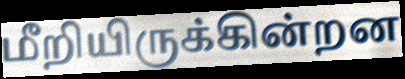
மீறியிருக்கின்றன